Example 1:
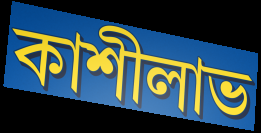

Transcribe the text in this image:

কাশীলাভ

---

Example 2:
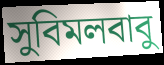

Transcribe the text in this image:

সুবিমলবাবু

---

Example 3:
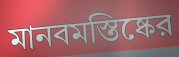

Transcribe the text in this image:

মানবমস্তিষ্কের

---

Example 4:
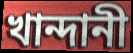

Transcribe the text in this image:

খান্দানী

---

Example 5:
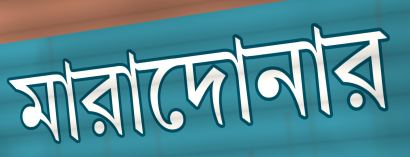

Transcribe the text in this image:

মারাদোনার